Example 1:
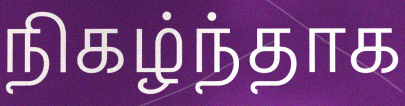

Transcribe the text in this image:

நிகழ்ந்தாக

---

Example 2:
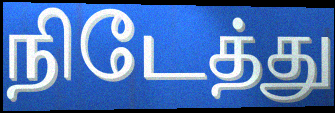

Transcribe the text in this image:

நிடேத்து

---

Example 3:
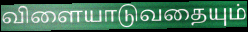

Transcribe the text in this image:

விளையாடுவதையும்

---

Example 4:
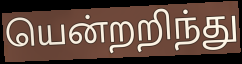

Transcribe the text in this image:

யென்றறிந்து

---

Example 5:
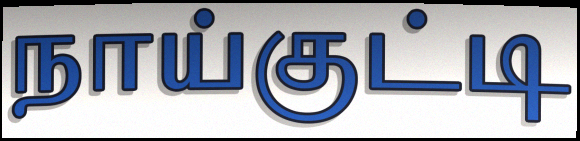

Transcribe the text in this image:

நாய்குட்டி